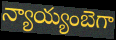
న్యాయ్యంబెగా